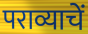
पराव्याचें